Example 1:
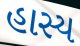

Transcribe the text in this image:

હાસ્ય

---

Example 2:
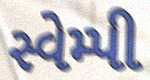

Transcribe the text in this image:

સ્વેમ્પી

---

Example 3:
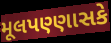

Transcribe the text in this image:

મૂલપણ્ણાસકે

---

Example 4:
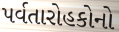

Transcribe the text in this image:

પર્વતારોહકોનો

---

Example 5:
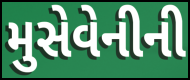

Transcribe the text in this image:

મુસેવેનીની